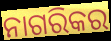
ନାଗରିକର